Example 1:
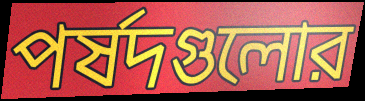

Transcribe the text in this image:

পর্ষদগুলোর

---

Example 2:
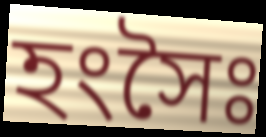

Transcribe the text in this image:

হংসৈঃ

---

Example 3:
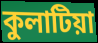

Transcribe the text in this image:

কুলাটিয়া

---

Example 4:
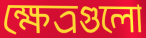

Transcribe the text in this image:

ক্ষেত্রগুলো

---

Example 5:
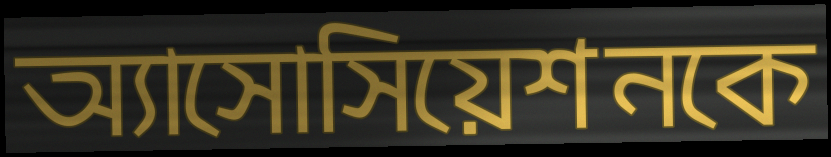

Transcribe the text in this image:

অ্যাসোসিয়েশনকে